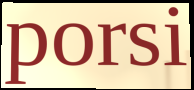
porsi